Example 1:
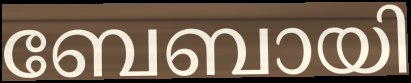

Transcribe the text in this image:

ബേബായി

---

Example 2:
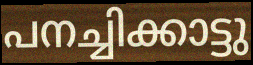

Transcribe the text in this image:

പനച്ചിക്കാട്ടു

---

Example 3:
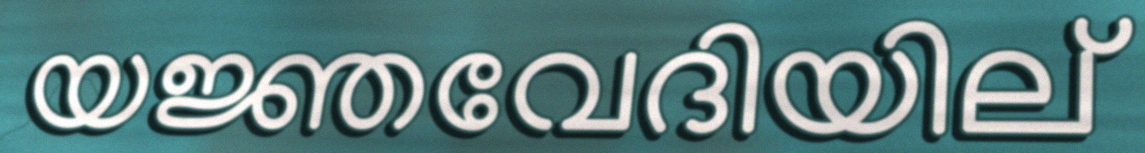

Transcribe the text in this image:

യജ്ഞവേദിയില്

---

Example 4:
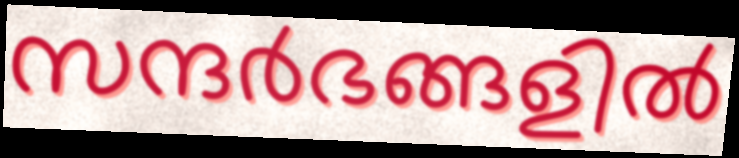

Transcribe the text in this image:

സന്ദർഭങ്ങളിൽ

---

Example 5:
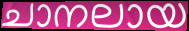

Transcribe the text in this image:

ചാനലായ